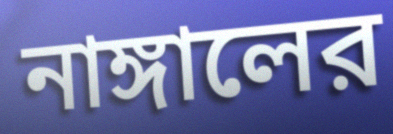
নাঙ্গালের